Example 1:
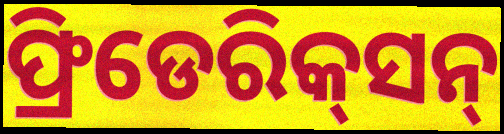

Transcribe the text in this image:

ଫ୍ରିଡେରିକ୍‌ସନ୍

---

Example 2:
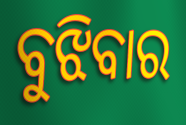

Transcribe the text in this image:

ବୁଝିବାର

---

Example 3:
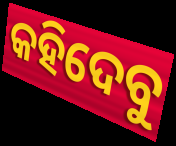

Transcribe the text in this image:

କହିଦେବୁ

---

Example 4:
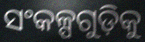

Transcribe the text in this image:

ସଂକଳ୍ପଗୁଡ଼ିକୁ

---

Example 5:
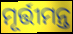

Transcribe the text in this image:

ମୂର୍ତ୍ତୀମନ୍ତ